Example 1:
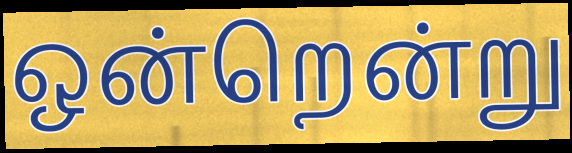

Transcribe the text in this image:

ஒன்றென்று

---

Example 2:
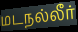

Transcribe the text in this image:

மடநல்லீர்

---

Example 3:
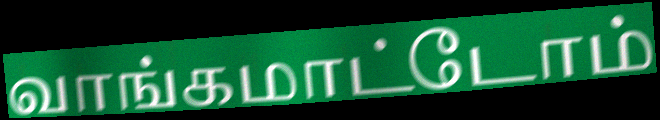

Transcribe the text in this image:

வாங்கமாட்டோம்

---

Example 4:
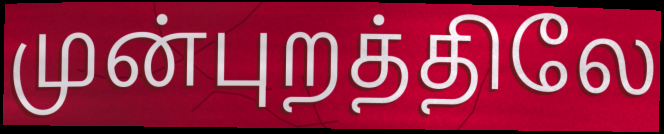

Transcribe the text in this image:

முன்புறத்திலே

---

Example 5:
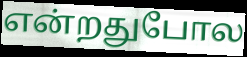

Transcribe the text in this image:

என்றதுபோல